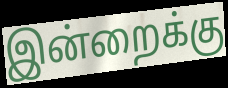
இன்றைக்கு